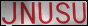
JNUSU